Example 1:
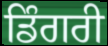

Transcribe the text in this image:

ਡਿੰਗਰੀ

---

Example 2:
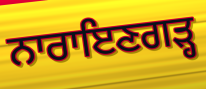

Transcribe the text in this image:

ਨਾਰਾਇਣਗੜ੍ਹ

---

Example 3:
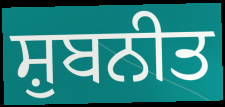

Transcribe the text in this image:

ਸ਼ੁਬਨੀਤ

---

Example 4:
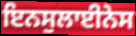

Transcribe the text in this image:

ਇਨਸੁਲਾਈਨੇਸ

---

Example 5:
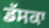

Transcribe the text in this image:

ਡੱਸਕਾ